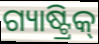
ଗ୍ୟାଷ୍ଟ୍ରିକ୍